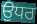
ਉਧਰ